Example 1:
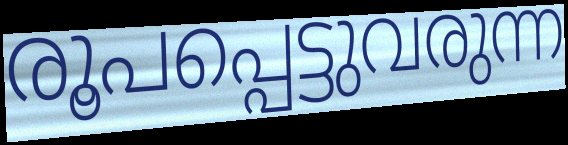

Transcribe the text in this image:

രൂപപ്പെട്ടുവരുന്ന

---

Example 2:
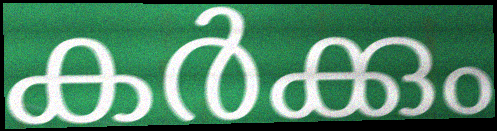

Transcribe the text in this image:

കർക്കും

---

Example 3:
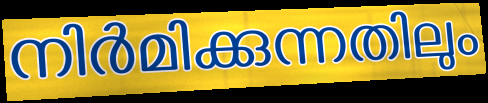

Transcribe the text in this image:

നിർമിക്കുന്നതിലും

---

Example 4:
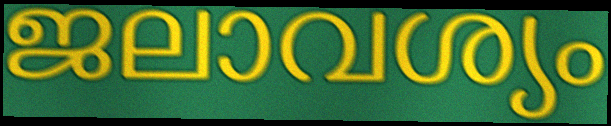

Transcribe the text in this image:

ജലാവശ്യം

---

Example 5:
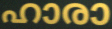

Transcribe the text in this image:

ഹാരാ